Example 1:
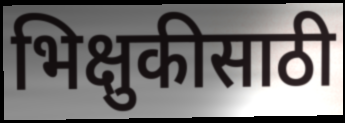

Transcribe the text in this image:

भिक्षुकीसाठी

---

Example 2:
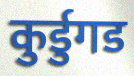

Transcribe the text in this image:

कुर्डुगड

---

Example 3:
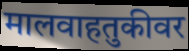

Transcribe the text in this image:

मालवाहतुकीवर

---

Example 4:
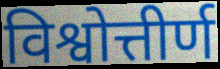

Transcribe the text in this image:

विश्वोत्तीर्ण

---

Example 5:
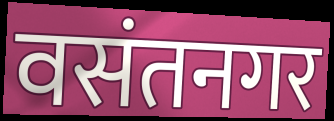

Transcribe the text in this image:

वसंतनगर